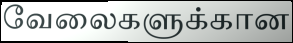
வேலைகளுக்கான